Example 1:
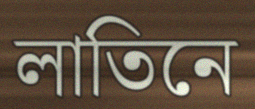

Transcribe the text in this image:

লাতিনে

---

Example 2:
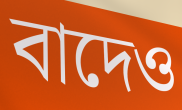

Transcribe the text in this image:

বাদেও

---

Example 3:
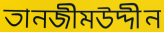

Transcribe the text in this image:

তানজীমউদ্দীন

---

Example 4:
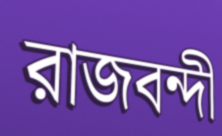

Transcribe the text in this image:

রাজবন্দী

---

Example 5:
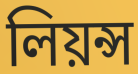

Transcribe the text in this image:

লিয়ন্স